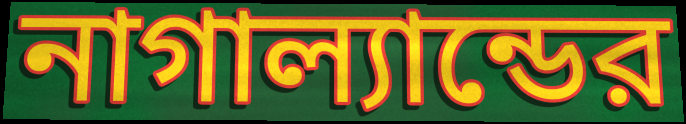
নাগাল্যান্ডের